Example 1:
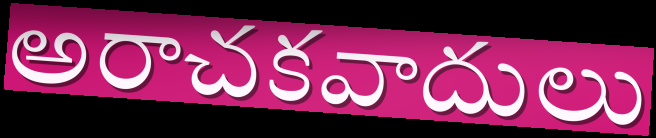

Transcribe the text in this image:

అరాచకవాదులు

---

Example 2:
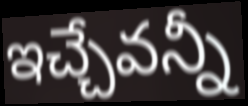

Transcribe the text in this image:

ఇచ్చేవన్నీ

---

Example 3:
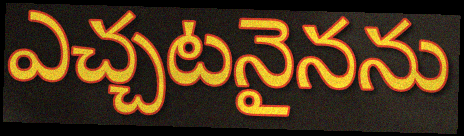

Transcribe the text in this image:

ఎచ్చటనైనను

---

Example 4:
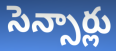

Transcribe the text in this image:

సెన్సార్లు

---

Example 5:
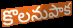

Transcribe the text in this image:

కొలనుపాక